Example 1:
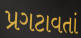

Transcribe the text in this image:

પ્રગટાવતાં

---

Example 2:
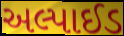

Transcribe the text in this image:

અલ્પાઈડ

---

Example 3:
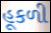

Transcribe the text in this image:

હૂકળી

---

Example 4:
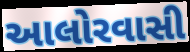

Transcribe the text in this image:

આલોરવાસી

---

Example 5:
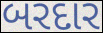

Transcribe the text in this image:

બરદાર